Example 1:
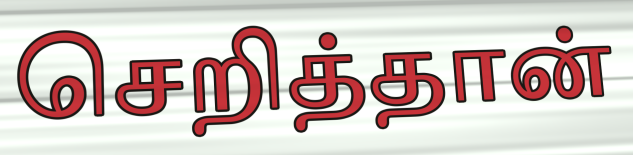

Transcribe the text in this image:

செறித்தான்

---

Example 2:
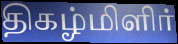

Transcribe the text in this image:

திகழ்மிளிர்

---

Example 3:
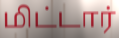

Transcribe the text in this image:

மிட்டார்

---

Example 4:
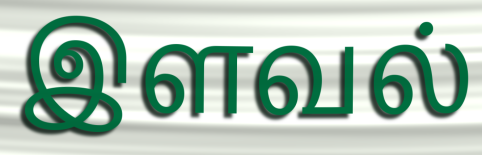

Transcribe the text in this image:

இளவல்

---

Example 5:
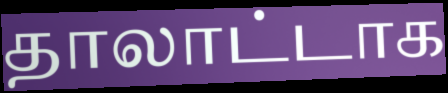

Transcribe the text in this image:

தாலாட்டாக